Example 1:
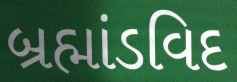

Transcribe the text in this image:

બ્રહ્માંડવિદ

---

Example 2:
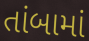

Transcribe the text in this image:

તાંબામાં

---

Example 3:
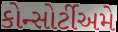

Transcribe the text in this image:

કોન્સોર્ટીઅમે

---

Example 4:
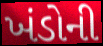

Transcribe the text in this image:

ખંડોની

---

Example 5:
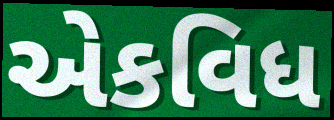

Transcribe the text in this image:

એકવિધ